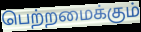
பெற்றமைக்கும்